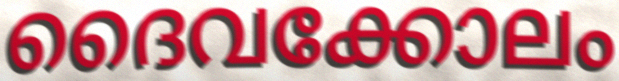
ദൈവക്കോലം